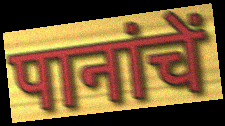
पानांचें